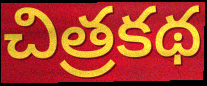
చిత్రకథ